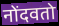
नोंदवतो